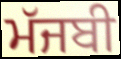
ਮੱਜਬੀ